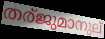
തര്ജുമാനുല്